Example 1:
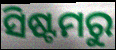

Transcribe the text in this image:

ସିଷ୍ଟମରୁ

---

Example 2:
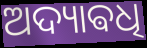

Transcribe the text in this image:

ଅଦ୍ୟାଵଧି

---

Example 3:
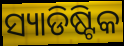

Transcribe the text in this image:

ସ୍ୟାଡିଷ୍ଟିକ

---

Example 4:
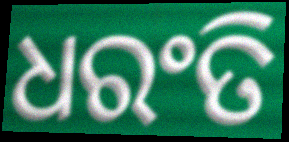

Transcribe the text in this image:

ଧରଂତି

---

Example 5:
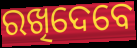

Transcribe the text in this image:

ରଖିଦେବେ